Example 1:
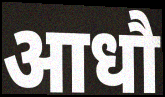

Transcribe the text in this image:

आधौ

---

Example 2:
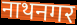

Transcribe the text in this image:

नाथनगर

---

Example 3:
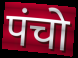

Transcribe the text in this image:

पंचो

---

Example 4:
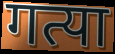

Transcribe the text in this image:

गत्या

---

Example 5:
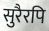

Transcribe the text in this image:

सुरैरपि